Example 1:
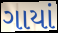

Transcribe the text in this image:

ગાયાં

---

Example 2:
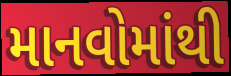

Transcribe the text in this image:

માનવોમાંથી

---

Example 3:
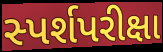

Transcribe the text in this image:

સ્પર્શપરીક્ષા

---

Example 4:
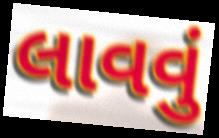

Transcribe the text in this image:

લાવવું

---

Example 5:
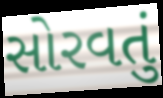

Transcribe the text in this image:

સોરવતું